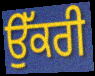
ਉੱਕਰੀ